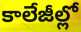
కాలేజీల్లో